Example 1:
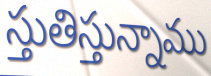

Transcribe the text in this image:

స్తుతిస్తున్నాము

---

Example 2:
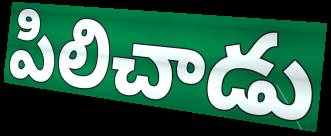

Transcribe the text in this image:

పిలిచాడు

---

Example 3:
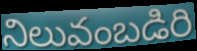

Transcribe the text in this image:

నిలువంబడిరి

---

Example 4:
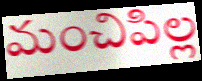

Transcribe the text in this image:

మంచిపిల్ల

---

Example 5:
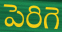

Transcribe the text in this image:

పెరిగె